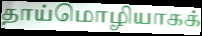
தாய்மொழியாகக்